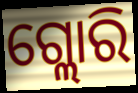
ଗ୍ଲୋରି